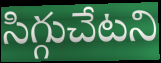
సిగ్గుచేటని